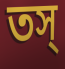
তস্